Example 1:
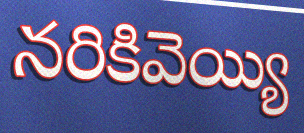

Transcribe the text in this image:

నరికివెయ్యి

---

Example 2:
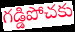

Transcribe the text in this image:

గడ్డిపోచకు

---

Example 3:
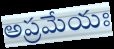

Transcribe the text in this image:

అప్రమేయః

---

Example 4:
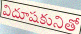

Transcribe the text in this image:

విదూషకునితో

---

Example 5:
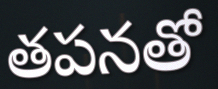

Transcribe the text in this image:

తపనతో